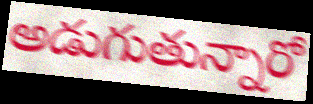
అడుగుతున్నారో